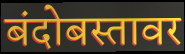
बंदोबस्तावर